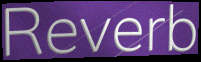
Reverb